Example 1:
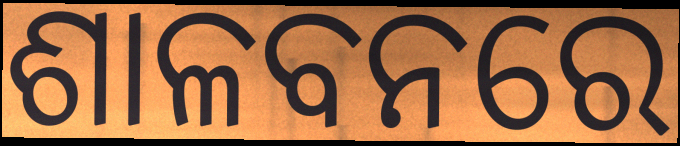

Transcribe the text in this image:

ଶାଳବନରେ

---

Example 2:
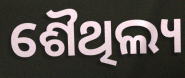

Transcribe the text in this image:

ଶୈଥିଲ୍ୟ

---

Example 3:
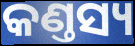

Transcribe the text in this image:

କଣ୍ତସ୍ୟ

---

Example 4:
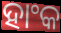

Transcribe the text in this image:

ହାଂକ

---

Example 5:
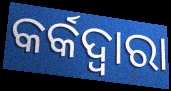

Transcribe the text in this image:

କର୍କଦ୍ଵାରା